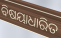
ବିଷୟାଧାରିତ